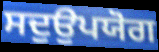
ਸਦੁਉਪਯੋਗ